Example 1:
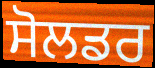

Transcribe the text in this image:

ਸੋਲਡਰ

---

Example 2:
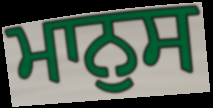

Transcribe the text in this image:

ਮਾਨੁਸ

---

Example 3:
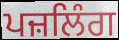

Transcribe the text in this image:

ਪਜ਼ਲਿੰਗ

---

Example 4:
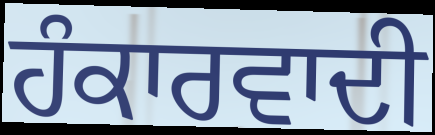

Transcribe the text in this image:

ਹੰਕਾਰਵਾਦੀ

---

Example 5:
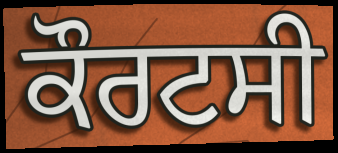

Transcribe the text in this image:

ਕੌਰਟਸੀ